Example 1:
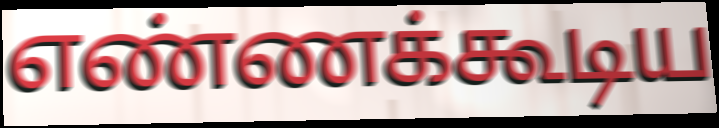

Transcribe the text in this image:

எண்ணக்கூடிய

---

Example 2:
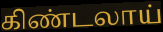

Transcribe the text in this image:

கிண்டலாய்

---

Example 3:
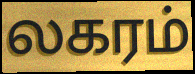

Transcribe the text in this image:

லகரம்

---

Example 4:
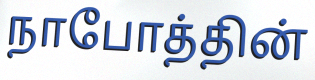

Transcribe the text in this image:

நாபோத்தின்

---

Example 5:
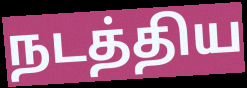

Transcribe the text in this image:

நடத்திய